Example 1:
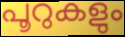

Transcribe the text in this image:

പൂറുകളും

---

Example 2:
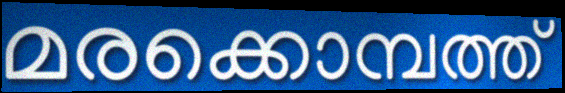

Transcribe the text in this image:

മരക്കൊമ്പത്ത്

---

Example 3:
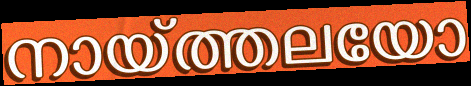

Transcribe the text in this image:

നായ്ത്തലയോ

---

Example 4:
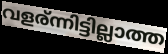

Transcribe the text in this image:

വളര്ന്നിട്ടില്ലാത്ത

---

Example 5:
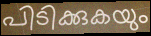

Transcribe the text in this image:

പിടിക്കുകയും